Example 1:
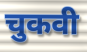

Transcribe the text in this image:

चुकवी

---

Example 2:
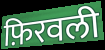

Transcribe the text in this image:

फ़िरवली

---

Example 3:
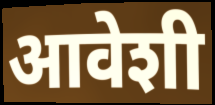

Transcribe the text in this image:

आवेशी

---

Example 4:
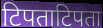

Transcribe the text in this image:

टिपताटिपता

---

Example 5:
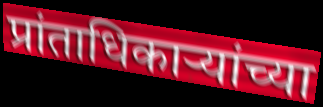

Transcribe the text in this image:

प्रांताधिकाऱ्यांच्या